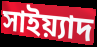
সাইয়্যাদ